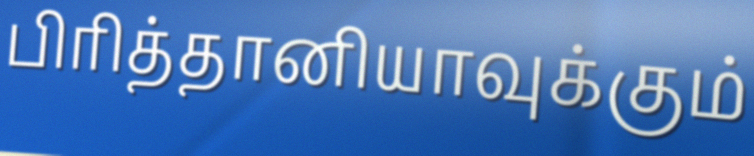
பிரித்தானியாவுக்கும்